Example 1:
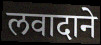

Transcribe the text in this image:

लवादाने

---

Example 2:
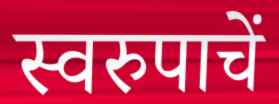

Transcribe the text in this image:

स्वरुपाचें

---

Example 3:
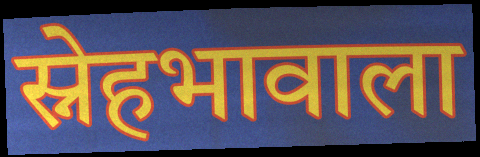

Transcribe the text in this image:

स्नेहभावाला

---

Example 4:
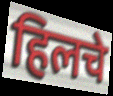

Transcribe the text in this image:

हिलचे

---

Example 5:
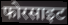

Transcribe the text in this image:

फोरसाइट